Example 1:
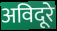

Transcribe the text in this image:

अविदूरे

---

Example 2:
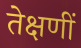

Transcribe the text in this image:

तेक्षणीं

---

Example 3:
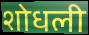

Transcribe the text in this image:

शोधली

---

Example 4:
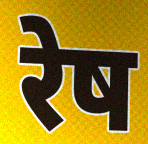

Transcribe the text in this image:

रेष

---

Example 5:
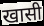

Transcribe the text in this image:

खासी